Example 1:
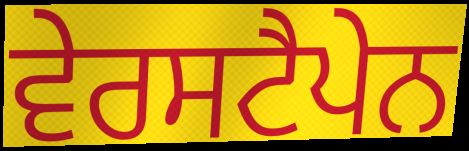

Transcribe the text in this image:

ਵੇਰਸਟੈਪੇਨ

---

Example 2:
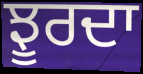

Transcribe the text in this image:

ਝੂਰਦਾ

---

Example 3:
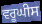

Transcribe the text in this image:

ਵਰੂਘੀਸ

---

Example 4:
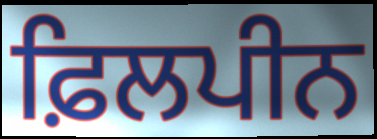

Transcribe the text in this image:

ਫ਼ਿਲਪੀਨ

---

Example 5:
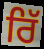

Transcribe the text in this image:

ਰਿੱ